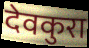
देवकुरा